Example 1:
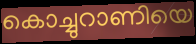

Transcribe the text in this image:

കൊച്ചുറാണിയെ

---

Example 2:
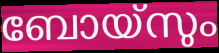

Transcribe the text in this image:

ബോയ്സും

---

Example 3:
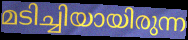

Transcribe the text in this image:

മടിച്ചിയായിരുന്ന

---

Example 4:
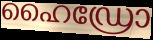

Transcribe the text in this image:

ഹൈഡ്രോ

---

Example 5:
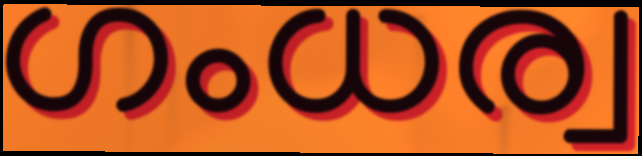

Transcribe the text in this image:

ഗംധര്വ